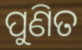
ପୁଣିତ